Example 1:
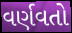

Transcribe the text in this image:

વર્ણવતો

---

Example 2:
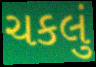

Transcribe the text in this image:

ચકલું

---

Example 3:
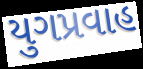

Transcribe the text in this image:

યુગપ્રવાહ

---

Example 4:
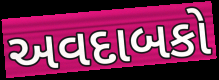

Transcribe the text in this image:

અવદાબકો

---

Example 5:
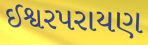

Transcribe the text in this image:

ઈશ્વરપરાયણ